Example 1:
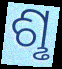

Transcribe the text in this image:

ଶୢ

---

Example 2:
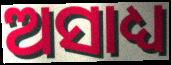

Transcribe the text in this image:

ଅସାଧ୍ୟ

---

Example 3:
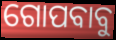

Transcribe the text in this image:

ଗୋପବାବୁ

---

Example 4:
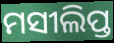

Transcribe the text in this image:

ମସୀଲିପ୍ତ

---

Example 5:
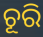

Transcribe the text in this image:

ଚୂରି